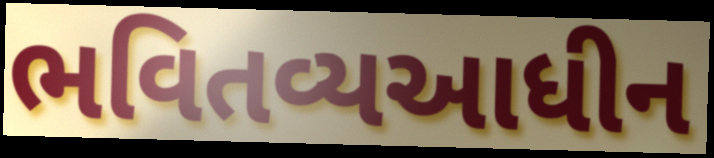
ભવિતવ્યઆધીન